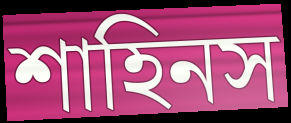
শাহিনস